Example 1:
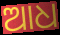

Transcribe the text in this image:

ଆଧ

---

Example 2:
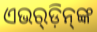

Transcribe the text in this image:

ଏଭର୍‍ଡ଼ିନ୍‌ଙ୍କ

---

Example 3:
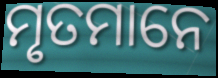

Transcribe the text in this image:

ମୃତମାନେ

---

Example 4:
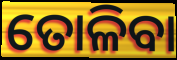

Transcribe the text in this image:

ତୋଳିବା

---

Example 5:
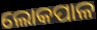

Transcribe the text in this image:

ଲୋକପାଳ